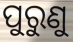
ପୁରୁଣୁ